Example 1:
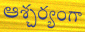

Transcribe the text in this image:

ఆశ్చర్యంగా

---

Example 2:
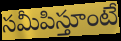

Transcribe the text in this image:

సమీపిస్తూంటే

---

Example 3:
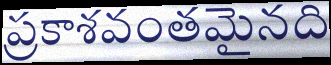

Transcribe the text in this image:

ప్రకాశవంతమైనది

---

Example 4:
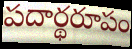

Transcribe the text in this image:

పదార్థరూపం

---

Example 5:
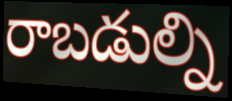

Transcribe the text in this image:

రాబడుల్ని